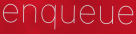
enqueue